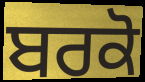
ਬਰਕੋ